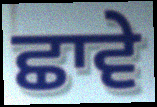
ਛਾਵੇ